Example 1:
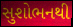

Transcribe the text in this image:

સુશોભનથી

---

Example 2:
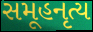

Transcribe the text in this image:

સમૂહનૃત્ય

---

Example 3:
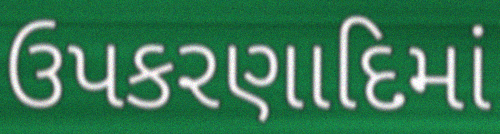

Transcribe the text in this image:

ઉપકરણાદિમાં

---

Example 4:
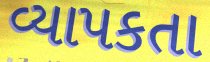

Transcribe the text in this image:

વ્યાપકતા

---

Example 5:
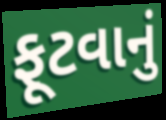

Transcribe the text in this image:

ફૂટવાનું